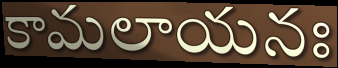
కామలాయనః